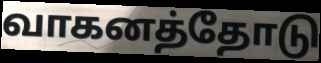
வாகனத்தோடு